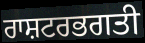
ਰਾਸ਼ਟਰਭਗਤੀ